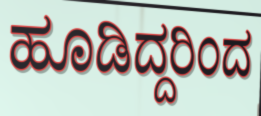
ಹೂಡಿದ್ದರಿಂದ